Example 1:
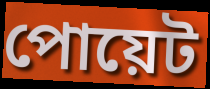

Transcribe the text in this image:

পোয়েট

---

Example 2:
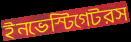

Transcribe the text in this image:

ইনভেস্টিগেটরস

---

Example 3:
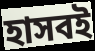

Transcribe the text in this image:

হাসবই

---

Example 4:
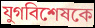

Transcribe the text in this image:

যুগবিশেষকে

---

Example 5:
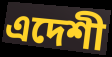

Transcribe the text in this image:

এদেশী